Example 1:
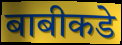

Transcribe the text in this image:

बाबीकडे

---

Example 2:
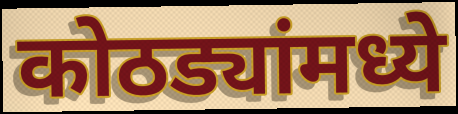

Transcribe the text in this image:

कोठड्यांमध्ये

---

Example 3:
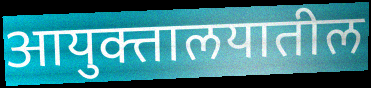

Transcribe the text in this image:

आयुक्तालयातील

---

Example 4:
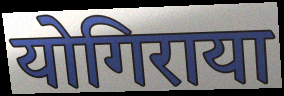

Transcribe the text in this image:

योगिराया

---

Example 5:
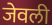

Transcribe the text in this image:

जेवली